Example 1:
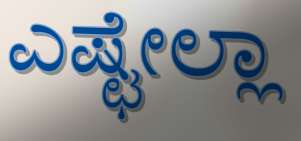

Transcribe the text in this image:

ಎಷ್ಟೇಲ್ಲಾ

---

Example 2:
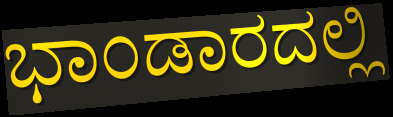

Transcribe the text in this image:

ಭಾಂಡಾರದಲ್ಲಿ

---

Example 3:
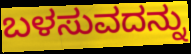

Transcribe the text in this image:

ಬಳಸುವದನ್ನು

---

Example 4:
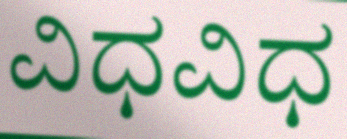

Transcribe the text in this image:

ವಿಧವಿಧ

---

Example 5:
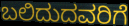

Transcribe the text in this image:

ಬಲಿದುದವರಿಗೆ